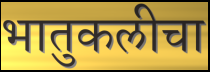
भातुकलीचा